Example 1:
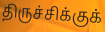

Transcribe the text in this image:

திருச்சிக்குக்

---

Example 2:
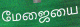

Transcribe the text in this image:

மேஜையை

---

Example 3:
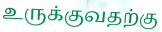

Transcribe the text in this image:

உருக்குவதற்கு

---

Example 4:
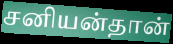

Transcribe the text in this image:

சனியன்தான்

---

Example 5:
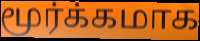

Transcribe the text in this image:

மூர்க்கமாக